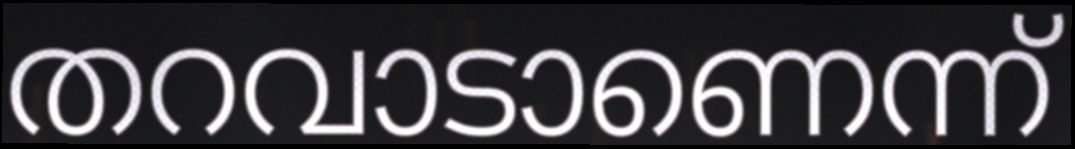
തറവാടാണെന്ന്